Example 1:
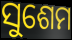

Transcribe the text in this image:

ସୁଶେମ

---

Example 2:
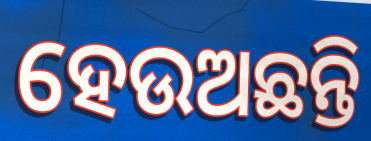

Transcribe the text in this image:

ହେଉଅଛନ୍ତି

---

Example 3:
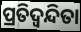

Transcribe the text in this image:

ପ୍ରତିଦ୍ୱନ୍ଦିତା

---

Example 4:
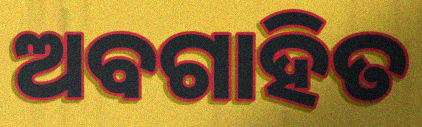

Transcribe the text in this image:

ଅବଗାହିତ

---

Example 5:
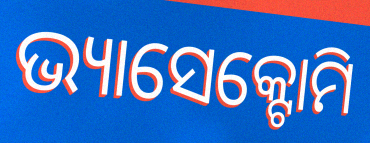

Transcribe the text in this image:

ଭ୍ୟାସେକ୍ଟୋମି